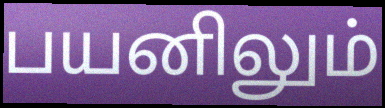
பயனிலும்